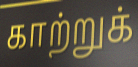
காற்றுக்